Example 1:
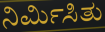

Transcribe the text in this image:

ನಿರ್ಮಿಸಿತು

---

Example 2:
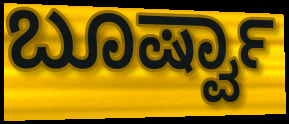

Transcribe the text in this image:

ಬೂರ್ಷ್ವಾ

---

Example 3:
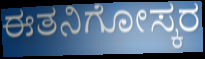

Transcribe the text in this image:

ಈತನಿಗೋಸ್ಕರ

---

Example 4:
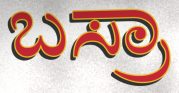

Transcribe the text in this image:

ಬಸ್ರಾ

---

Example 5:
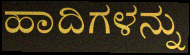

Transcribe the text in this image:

ಹಾದಿಗಳನ್ನು